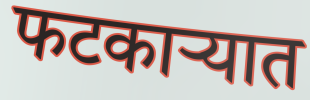
फटकाऱ्यात